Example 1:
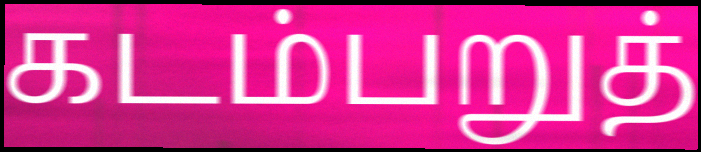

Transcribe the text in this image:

கடம்பறுத்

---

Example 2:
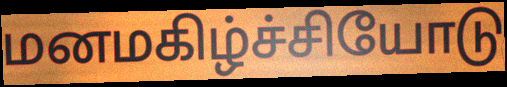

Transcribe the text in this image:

மனமகிழ்ச்சியோடு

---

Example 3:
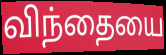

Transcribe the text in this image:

விந்தையை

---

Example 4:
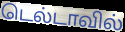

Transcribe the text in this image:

டெல்டாவில்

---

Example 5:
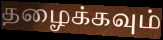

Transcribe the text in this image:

தழைக்கவும்